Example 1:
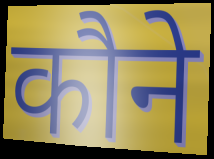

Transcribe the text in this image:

कौने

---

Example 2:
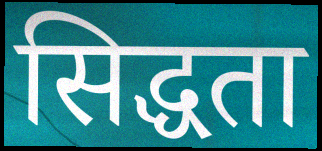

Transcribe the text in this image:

सिद्धता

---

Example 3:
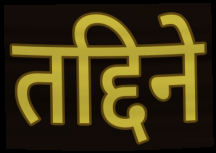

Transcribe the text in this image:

तद्दिने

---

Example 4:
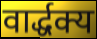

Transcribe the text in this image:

वार्द्धक्य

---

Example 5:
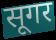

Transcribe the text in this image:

सूगर